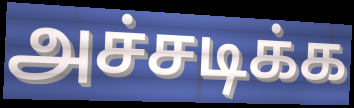
அச்சடிக்க